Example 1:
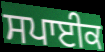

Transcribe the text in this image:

ਸਪਾਈਕ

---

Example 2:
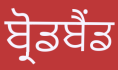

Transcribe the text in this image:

ਬ੍ਰੋਡਬੈਂਡ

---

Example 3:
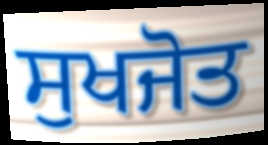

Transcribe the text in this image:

ਸੁਖਜੋਤ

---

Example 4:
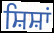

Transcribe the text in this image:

ਸ਼ਿਸ਼ਾਂ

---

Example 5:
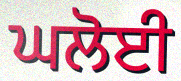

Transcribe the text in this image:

ਘਲੋਈ